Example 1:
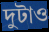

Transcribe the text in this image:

দুটাও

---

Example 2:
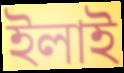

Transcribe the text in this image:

ইলাই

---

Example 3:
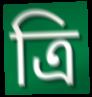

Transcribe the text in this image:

ত্ৰি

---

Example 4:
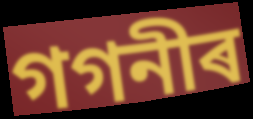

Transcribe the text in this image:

গগনীৰ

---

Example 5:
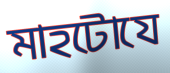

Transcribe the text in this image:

মাহটোযে